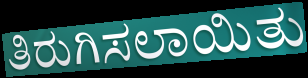
ತಿರುಗಿಸಲಾಯಿತು